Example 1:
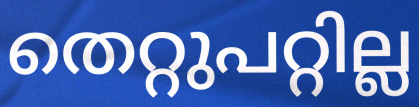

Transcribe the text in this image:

തെറ്റുപറ്റില്ല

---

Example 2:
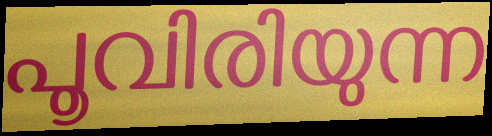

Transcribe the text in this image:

പൂവിരിയുന്ന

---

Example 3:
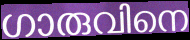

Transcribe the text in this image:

ഗാരുവിനെ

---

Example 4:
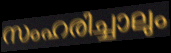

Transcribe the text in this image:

സംഹരിച്ചാലും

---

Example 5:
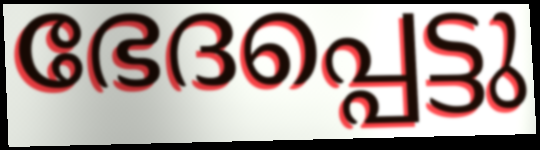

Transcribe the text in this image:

ഭേദപ്പെട്ടു